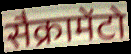
सैक्रामेंटो